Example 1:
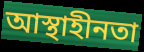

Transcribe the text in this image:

আস্থাহীনতা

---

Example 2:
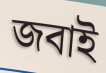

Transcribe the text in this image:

জবাই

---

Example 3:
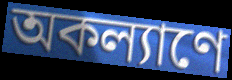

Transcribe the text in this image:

অকল্যাণে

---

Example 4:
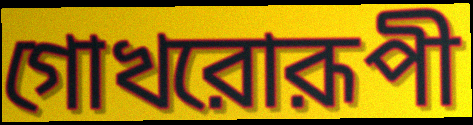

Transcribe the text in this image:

গোখরোরূপী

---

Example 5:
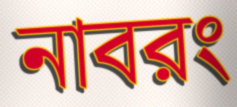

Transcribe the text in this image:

নাবরং